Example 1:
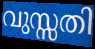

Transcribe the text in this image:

വുസ്സതി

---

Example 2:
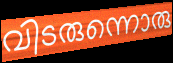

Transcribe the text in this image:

വിടരുന്നൊരു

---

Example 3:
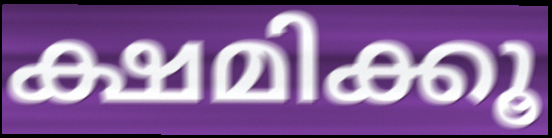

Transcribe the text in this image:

ക്ഷമിക്കൂ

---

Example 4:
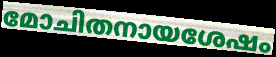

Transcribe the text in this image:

മോചിതനായശേഷം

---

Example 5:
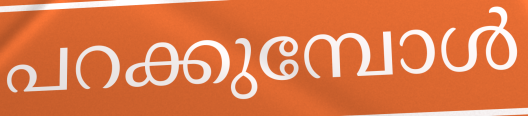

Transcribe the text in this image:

പറക്കുമ്പോൾ